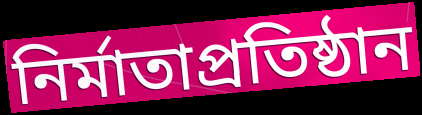
নির্মাতাপ্রতিষ্ঠান